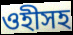
ওহীসহ